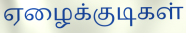
ஏழைக்குடிகள்